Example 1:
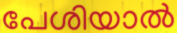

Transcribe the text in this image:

പേശിയാൽ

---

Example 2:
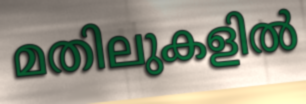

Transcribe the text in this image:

മതിലുകളിൽ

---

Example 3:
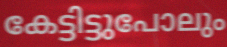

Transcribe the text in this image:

കേട്ടിട്ടുപോലും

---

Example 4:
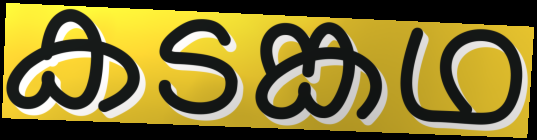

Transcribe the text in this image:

കടങ്കഥ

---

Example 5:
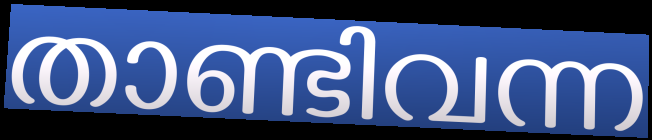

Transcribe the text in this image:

താണ്ടിവന്ന